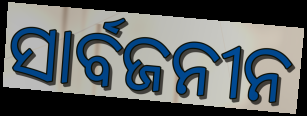
ସାର୍ବଜନୀନ